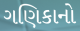
ગણિકાનો